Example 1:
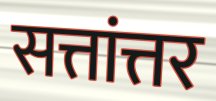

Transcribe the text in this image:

सत्तांत्तर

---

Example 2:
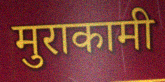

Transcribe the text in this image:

मुराकामी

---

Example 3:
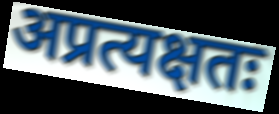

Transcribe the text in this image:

अप्रत्यक्षतः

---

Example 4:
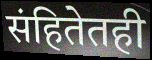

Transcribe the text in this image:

संहितेतही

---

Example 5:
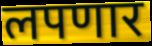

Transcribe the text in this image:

लपणार